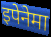
इपेनेमा